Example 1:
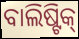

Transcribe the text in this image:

ବାଲିଷ୍ଟିକ୍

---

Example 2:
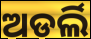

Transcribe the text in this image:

ଅଡର୍ଲି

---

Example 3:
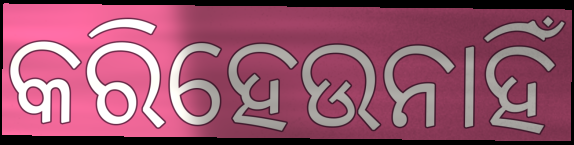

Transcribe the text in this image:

କରିହେଉନାହିଁ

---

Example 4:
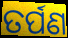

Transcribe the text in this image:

ତର୍ପଣ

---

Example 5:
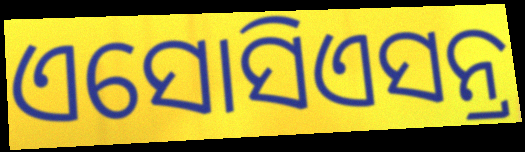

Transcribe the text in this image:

ଏସୋସିଏସନ୍ର